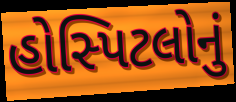
હોસ્પિટલોનું